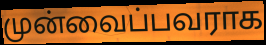
முன்வைப்பவராக